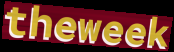
theweek